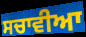
ਸਚਾਵੀਆ